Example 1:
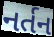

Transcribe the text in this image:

નર્તન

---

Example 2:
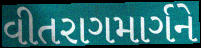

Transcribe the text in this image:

વીતરાગમાર્ગને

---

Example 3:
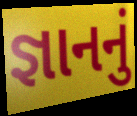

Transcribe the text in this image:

જ્ઞાનનું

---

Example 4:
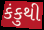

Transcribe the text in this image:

કંકુથી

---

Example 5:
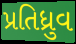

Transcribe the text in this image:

પ્રતિધ્રુવ